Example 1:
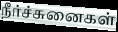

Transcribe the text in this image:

நீர்ச்சுனைகள்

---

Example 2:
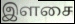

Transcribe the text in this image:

இளசை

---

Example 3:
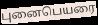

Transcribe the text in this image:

புனைபெயரை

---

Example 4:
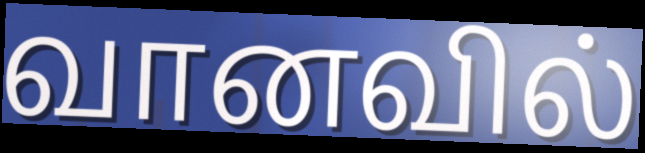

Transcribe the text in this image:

வானவில்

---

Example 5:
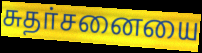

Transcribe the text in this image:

சுதர்சனையை